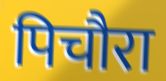
पिचौरा